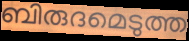
ബിരുദമെടുത്ത